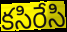
కసిరేసి